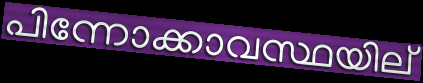
പിന്നോക്കാവസ്ഥയില്